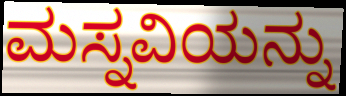
ಮಸ್ನವಿಯನ್ನು